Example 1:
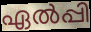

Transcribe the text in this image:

ഏൽപ്പി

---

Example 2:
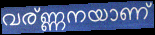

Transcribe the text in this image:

വര്ണ്ണനയാണ്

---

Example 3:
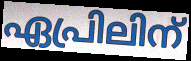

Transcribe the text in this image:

ഏപ്രിലിന്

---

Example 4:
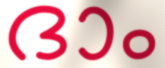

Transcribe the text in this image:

ദാം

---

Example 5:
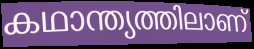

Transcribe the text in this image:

കഥാന്ത്യത്തിലാണ്